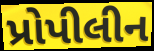
પ્રોપીલીન